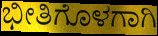
ಭೀತಿಗೊಳಗಾಗಿ